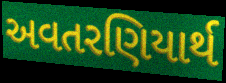
અવતરણિયાર્થ